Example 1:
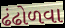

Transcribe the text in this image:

ઢંઢોળવા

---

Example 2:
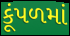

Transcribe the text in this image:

કૂંપળમાં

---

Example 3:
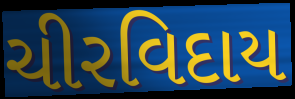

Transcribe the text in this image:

ચીરવિદાય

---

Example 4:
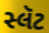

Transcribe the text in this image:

સ્લૅટ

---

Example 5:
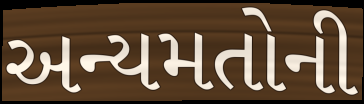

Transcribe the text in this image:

અન્યમતોની